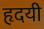
हृदयी